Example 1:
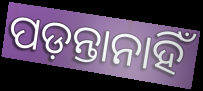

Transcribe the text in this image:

ପଡ଼ନ୍ତାନାହିଁ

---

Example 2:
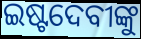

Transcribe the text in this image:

ଇଷ୍ଟଦେବୀଙ୍କୁ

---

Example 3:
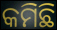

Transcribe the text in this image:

କମିଛି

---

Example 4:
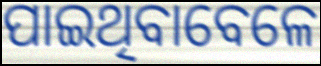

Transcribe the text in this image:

ପାଇଥିବାବେଳେ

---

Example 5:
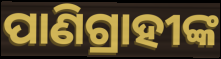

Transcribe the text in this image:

ପାଣିଗ୍ରାହୀଙ୍କ